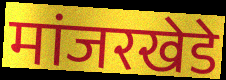
मांजरखेडे